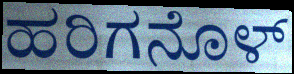
ಹರಿಗನೊಳ್